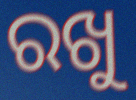
ରଖୁ